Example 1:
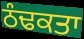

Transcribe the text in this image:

ਠੰਢਕਤਾ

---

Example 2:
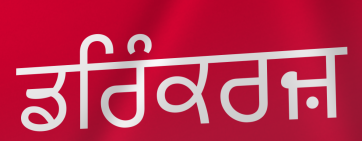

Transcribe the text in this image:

ਡਰਿੰਕਰਜ਼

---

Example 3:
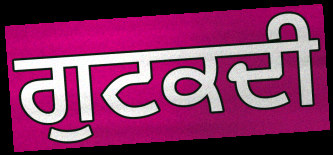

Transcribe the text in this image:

ਗੁਟਕਦੀ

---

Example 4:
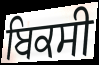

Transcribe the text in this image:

ਬਿਕਸੀ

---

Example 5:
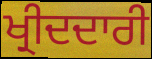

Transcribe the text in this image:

ਖ੍ਰੀਦਦਾਰੀ